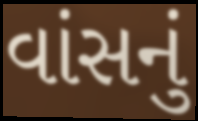
વાંસનું